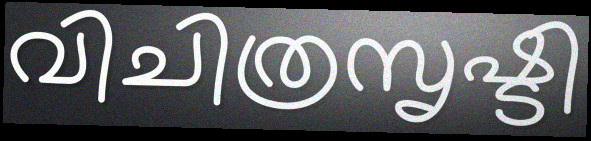
വിചിത്രസൃഷ്ടി